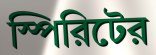
স্পিরিটের